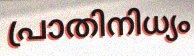
പ്രാതിനിധ്യം